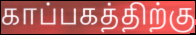
காப்பகத்திற்கு